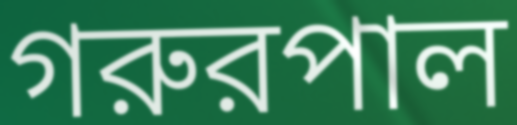
গরুরপাল